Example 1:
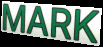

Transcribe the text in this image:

MARK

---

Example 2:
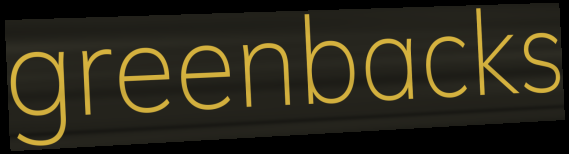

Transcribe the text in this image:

greenbacks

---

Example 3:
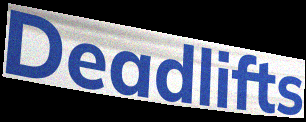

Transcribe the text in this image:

Deadlifts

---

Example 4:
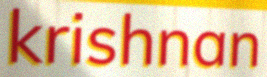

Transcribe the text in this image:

krishnan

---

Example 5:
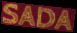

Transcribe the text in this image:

SADA